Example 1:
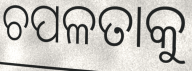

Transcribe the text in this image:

ଚପଳତାକୁ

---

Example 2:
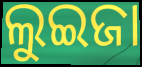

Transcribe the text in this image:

ଲୁଇଜା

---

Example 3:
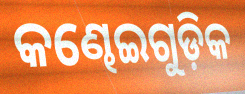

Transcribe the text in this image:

କଣ୍ଢେଇଗୁଡ଼ିକ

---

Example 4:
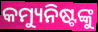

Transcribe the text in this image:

କମ୍ୟୁନିଷ୍ଟଙ୍କୁ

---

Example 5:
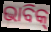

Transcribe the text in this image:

ଭାବିକ୍